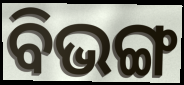
ବିଭଙ୍ଗ